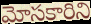
మోసకారిని